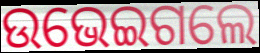
ଉଭେଇଗଲେ